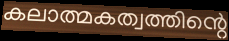
കലാത്മകത്വത്തിന്റെ